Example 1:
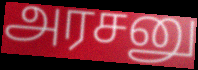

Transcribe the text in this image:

அரசனு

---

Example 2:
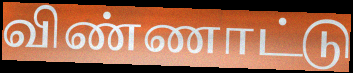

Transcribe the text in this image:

விண்ணாட்டு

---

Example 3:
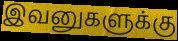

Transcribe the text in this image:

இவனுகளுக்கு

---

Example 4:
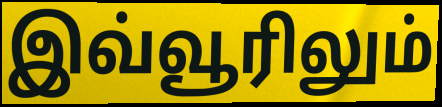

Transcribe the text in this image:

இவ்வூரிலும்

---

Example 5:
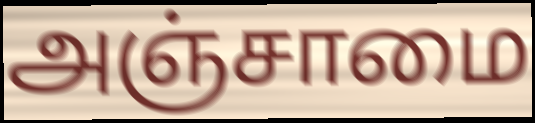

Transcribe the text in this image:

அஞ்சாமை